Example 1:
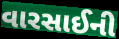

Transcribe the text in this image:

વારસાઈની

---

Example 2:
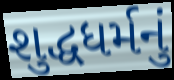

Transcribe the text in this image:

શુદ્ધધર્મનું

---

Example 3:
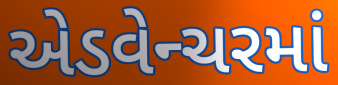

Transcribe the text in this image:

એડવેન્ચરમાં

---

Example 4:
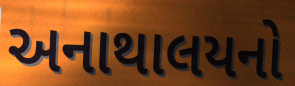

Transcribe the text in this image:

અનાથાલયનો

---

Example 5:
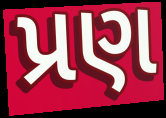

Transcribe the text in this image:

પ્રણ